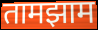
तामझाम